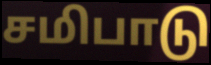
சமிபாடு